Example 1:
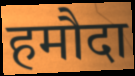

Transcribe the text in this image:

हमौदा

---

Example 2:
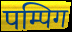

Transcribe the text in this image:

पम्पिग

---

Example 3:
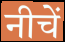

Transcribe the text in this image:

नीचें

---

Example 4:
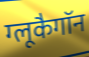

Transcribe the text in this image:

ग्लूकैगॉन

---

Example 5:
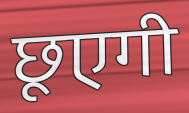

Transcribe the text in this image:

छूएगी